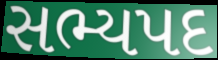
સભ્યપદ